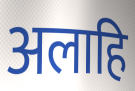
अलाहि